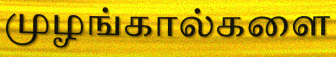
முழங்கால்களை